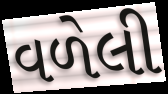
વળેલી